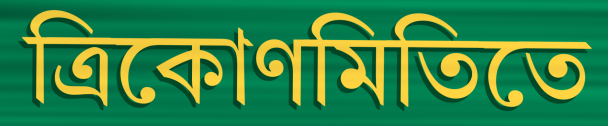
ত্রিকোণমিতিতে